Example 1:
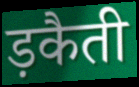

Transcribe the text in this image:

ड़कैती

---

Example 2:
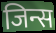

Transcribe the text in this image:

जिन्‍स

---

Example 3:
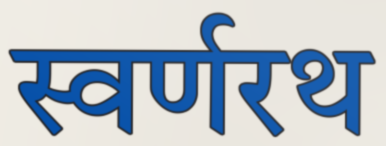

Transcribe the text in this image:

स्वर्णरथ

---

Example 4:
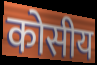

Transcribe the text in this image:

कोसीय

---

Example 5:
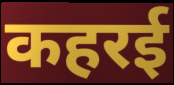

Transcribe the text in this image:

कहरई